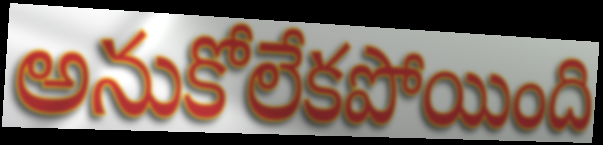
అనుకోలేకపోయింది